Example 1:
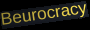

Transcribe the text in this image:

Beurocracy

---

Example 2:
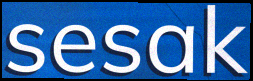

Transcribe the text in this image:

sesak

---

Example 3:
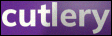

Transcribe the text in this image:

cutlery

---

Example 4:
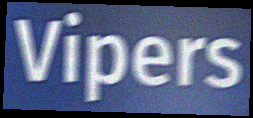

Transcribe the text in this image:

Vipers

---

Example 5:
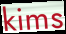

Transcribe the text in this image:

kims